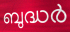
ബുദ്ധർ